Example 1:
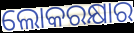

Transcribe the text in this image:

ଲୋକରକ୍ଷାର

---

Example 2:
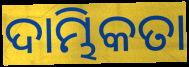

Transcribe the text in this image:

ଦାମ୍ଭିକତା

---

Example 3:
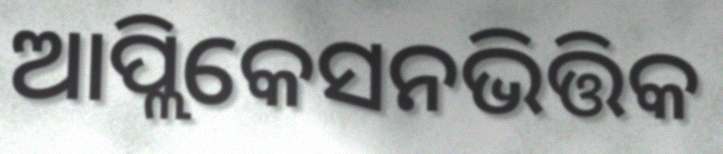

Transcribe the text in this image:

ଆପ୍ଲିକେସନଭିତ୍ତିକ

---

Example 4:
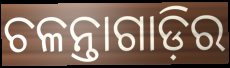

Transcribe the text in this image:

ଚଳନ୍ତାଗାଡ଼ିର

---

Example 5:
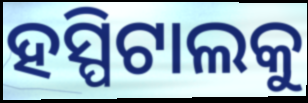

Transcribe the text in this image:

ହସ୍ପିଟାଲକୁ